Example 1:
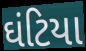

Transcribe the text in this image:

ઘંટિયા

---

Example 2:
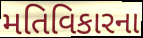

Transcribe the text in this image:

મતિવિકારના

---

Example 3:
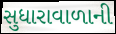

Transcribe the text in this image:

સુધારાવાળાની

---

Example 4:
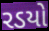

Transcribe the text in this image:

રડયો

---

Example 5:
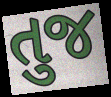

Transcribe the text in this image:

તુજ